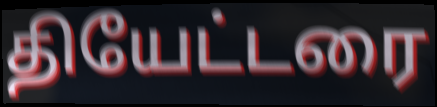
தியேட்டரை